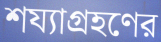
শয্যাগ্রহণের